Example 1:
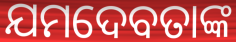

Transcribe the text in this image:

ଯମଦେବତାଙ୍କ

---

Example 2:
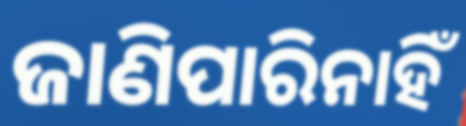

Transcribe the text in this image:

ଜାଣିପାରିନାହିଁ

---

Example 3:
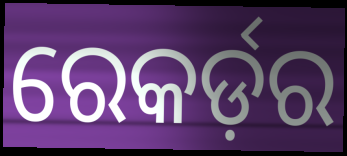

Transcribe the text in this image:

ରେକର୍ଡ଼ର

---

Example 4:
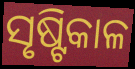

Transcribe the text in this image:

ସୃଷ୍ଟିକାଳ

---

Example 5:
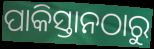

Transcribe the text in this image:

ପାକିସ୍ତାନଠାରୁ